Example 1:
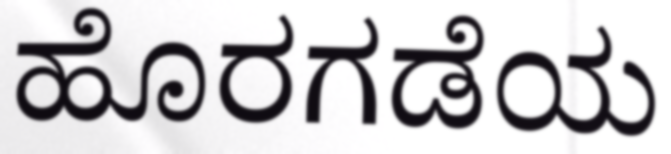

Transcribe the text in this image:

ಹೊರಗಡೆಯ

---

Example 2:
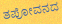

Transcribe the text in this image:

ತಪೋವನದ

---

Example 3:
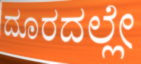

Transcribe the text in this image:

ದೂರದಲ್ಲೇ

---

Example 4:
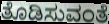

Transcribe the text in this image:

ತೊಡಿಸುವಂತೆ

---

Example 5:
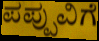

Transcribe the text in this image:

ಪಪ್ಪುವಿಗೆ